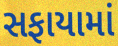
સફાયામાં